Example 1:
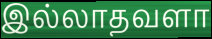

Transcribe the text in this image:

இல்லாதவளா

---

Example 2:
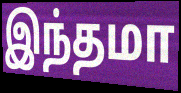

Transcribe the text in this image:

இந்தமா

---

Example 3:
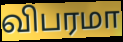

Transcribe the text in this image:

விபரமா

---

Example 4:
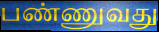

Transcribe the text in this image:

பண்ணுவது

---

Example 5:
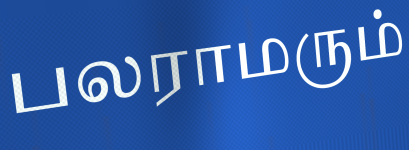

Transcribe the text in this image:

பலராமரும்